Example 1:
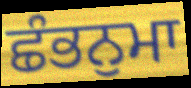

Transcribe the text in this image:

ਛੰਭਨੁਮਾ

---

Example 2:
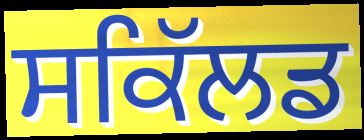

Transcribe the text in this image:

ਸਕਿੱਲਡ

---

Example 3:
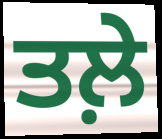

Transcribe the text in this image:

ਤਲ਼ੇ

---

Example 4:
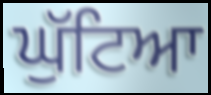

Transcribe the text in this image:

ਘੁੱਟਿਆ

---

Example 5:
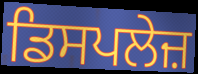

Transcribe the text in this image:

ਡਿਸਪਲੇਜ਼